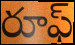
రూఫ్